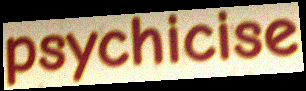
psychicise